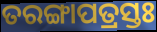
ତରଙ୍ଗାପତ୍ରସ୍ତଃ